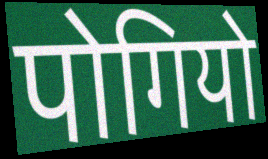
पोगियो